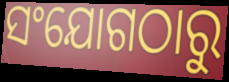
ସଂଯୋଗଠାରୁ